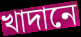
খাদানে